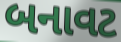
બનાવટ